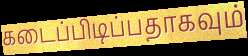
கடைப்பிடிப்பதாகவும்